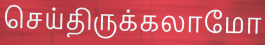
செய்திருக்கலாமோ